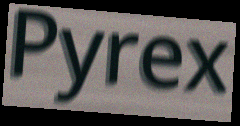
Pyrex